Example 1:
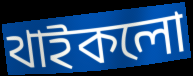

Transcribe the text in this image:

থাইকলো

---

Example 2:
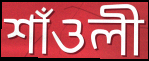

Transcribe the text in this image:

শাঁওলী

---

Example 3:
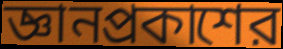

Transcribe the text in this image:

জ্ঞানপ্রকাশের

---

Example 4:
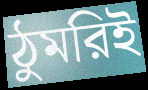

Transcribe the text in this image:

ঠুমরিই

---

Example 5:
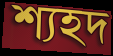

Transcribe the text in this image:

শ্যহদ